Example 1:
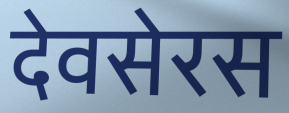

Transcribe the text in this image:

देवसेरस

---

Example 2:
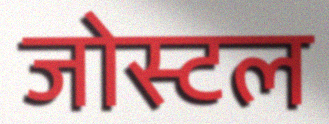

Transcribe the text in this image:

जोस्टल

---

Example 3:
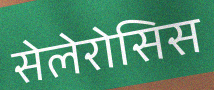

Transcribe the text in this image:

सेलेरोसिस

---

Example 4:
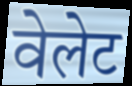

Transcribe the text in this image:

वेलेट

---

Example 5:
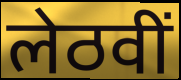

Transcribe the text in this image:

लेठवीं